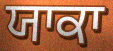
ਯਾਕਾ